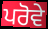
ਪਰੋਵੇ